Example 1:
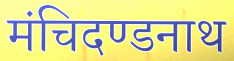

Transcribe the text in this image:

मंचिदण्डनाथ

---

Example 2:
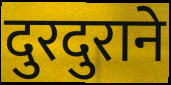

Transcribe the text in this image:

दुरदुराने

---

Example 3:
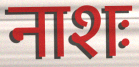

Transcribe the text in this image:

नाशः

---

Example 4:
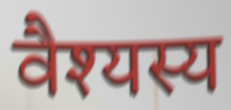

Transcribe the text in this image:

वैश्यस्य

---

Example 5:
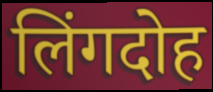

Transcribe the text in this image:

लिंगदोह